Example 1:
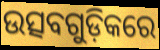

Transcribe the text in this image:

ଉତ୍ସବଗୁଡ଼ିକରେ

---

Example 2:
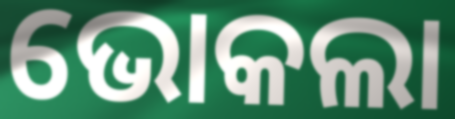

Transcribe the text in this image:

ଭୋକଲା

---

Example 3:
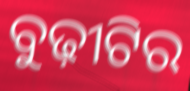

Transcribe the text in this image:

ବୁଢ଼ୀଟିର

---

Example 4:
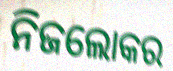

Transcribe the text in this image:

ନିଜଲୋକର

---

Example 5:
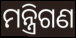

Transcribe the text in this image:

ମନ୍ତ୍ରିଗଣ